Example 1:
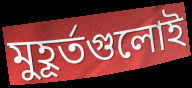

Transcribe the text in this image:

মুহূর্তগুলোই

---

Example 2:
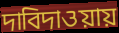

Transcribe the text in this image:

দাবিদাওয়ায়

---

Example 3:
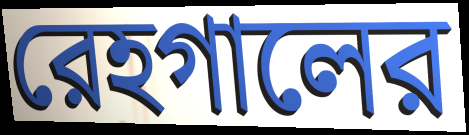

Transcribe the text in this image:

রেহগালের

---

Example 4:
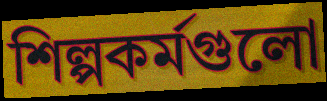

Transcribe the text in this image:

শিল্পকর্মগুলো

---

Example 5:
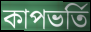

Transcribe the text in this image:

কাপভর্তি